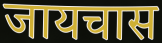
जायचास